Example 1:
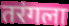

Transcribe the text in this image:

तरंगला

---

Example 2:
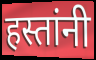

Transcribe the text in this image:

हस्तांनी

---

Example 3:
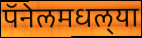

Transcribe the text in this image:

पॅनेलमधल्या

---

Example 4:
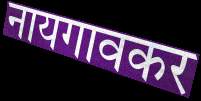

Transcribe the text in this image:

नायगावकर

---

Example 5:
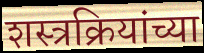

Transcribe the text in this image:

शस्त्रक्रियांच्या